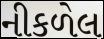
નીકળેલ